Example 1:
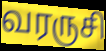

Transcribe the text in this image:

வரருசி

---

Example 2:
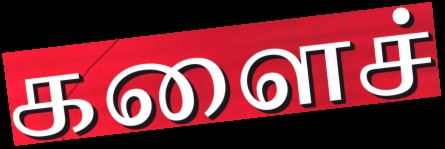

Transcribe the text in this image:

களைச்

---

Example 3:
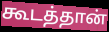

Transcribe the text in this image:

கூடத்தான்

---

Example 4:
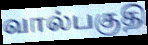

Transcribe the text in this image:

வால்பகுதி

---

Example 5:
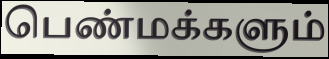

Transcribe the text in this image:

பெண்மக்களும்